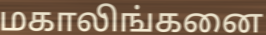
மகாலிங்கனை